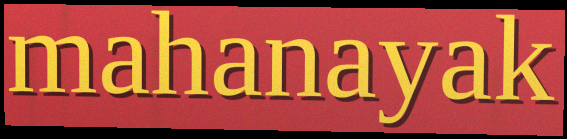
mahanayak